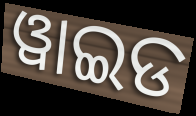
ୱାଇଡ